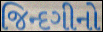
જિન્દગીનો